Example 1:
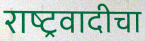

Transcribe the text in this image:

राष्ट्रवादीचा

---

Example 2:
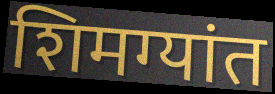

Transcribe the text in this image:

शिमग्यांत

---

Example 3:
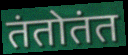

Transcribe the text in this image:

तंतोतंत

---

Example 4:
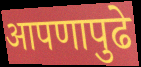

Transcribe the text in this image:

आपणापुढे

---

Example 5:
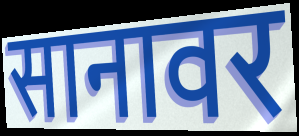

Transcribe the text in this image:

सानावर